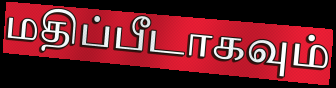
மதிப்பீடாகவும்